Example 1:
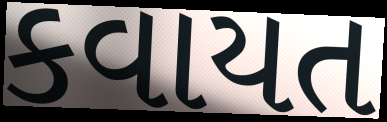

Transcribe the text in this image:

કવાયત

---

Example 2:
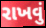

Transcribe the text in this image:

રાખવું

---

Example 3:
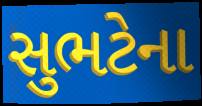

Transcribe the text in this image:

સુભટેના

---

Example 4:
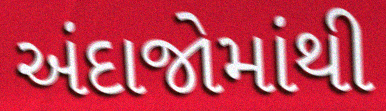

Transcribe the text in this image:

અંદાજોમાંથી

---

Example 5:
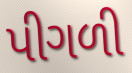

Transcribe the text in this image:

પીગળી